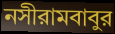
নসীরামবাবুর